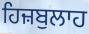
ਹਿਜ਼ਬੁਲਾਹ